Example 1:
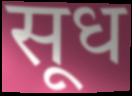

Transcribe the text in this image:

सूध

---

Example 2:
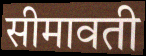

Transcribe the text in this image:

सीमावती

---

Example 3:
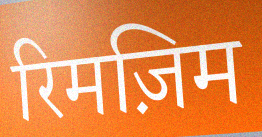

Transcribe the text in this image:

रिमज़िम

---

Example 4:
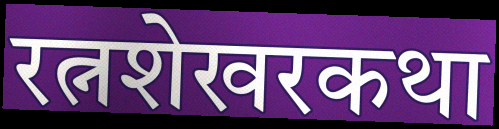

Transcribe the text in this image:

रत्नशेखरकथा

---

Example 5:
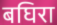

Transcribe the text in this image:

बघिरा